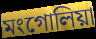
মংগোলিয়া